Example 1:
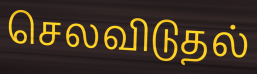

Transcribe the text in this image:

செலவிடுதல்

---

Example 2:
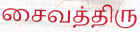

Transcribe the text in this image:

சைவத்திரு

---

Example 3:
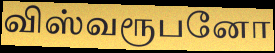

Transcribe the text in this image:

விஸ்வரூபனோ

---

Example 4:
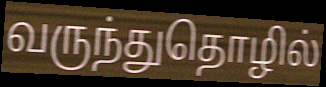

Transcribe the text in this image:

வருந்துதொழில்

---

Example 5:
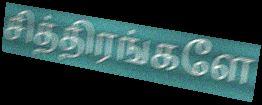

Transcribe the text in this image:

சித்திரங்களே